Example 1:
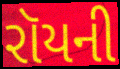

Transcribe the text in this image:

રૉયની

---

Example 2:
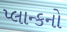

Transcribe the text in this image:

પ્લાન્કનો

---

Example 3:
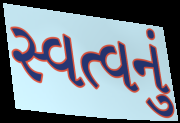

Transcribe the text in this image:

સ્વત્વનું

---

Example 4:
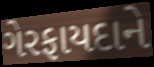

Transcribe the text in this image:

ગેરફાયદાને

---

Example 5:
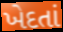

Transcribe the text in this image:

ખેદતાં